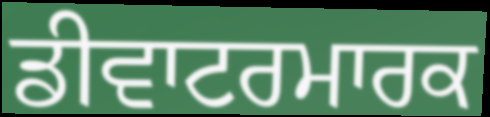
ਡੀਵਾਟਰਮਾਰਕ